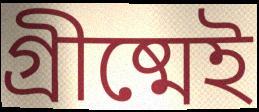
গ্রীষ্মেই